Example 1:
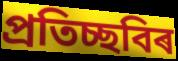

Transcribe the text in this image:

প্ৰতিচ্ছবিৰ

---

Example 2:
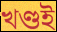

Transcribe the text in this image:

খণ্ডই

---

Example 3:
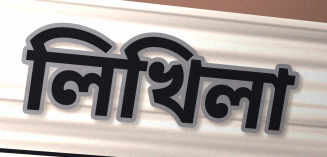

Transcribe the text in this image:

লিখিলা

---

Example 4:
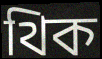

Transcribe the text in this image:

থিক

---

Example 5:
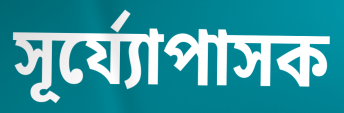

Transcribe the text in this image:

সূৰ্য্যোপাসক